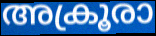
അക്രൂരാ